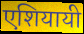
एशियायी